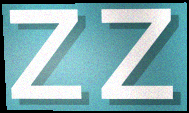
zz